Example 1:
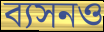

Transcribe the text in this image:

ব্যসনও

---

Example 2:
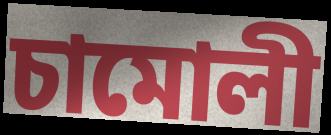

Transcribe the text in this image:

চামোলী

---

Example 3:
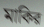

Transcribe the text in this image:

মাকির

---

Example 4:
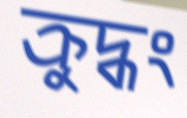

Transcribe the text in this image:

ক্রুদ্ধং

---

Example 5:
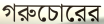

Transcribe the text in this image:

গরুচোরের